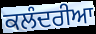
ਕਲੰਦਰੀਆ